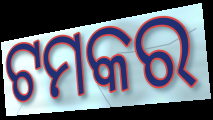
ଟମକର